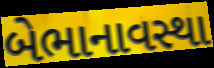
બેભાનાવસ્થા